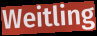
Weitling